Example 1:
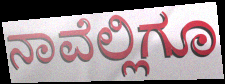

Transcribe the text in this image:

ನಾವೆಲ್ಲಿಗೂ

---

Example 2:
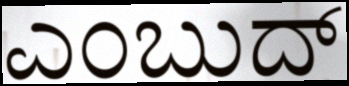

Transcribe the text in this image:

ಎಂಬುದ್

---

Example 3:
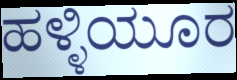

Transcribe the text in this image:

ಹಳ್ಳಿಯೂರ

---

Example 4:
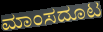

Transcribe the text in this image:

ಮಾಂಸದೂಟ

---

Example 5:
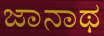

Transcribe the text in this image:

ಜಾನಾಥ